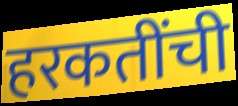
हरकतींची